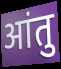
आंतु